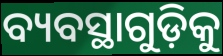
ବ୍ୟବସ୍ଥାଗୁଡ଼ିକୁ